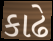
કાઢે